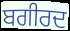
ਬਗੀਰਦ